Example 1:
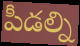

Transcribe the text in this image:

పీడల్ని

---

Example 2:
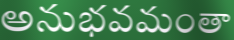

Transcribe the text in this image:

అనుభవమంతా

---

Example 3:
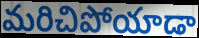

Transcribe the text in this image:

మరిచిపోయాడా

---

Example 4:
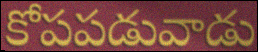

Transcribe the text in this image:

కోపపడువాడు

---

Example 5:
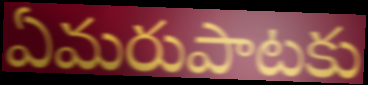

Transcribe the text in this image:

ఏమరుపాటకు